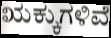
ಋಕ್ಕುಗಳಿವೆ